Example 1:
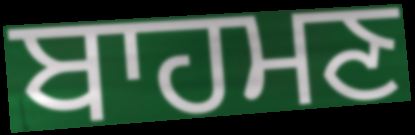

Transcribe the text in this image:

ਬਾਹਮਣ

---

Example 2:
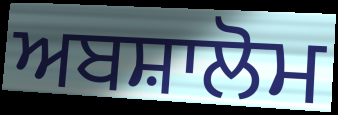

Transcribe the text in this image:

ਅਬਸ਼ਾਲੋਮ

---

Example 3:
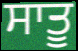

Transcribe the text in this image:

ਸਾਤੂ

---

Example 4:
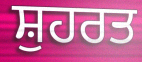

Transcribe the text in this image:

ਸ਼ੁਹਰਤ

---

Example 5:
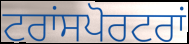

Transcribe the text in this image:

ਟਰਾਂਸਪੋਰਟਰਾਂ